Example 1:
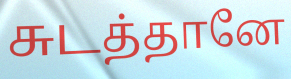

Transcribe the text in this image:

சுடத்தானே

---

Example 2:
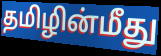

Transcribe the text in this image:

தமிழின்மீது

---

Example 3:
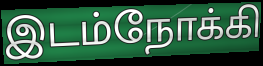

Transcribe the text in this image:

இடம்நோக்கி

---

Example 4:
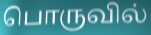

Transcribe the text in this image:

பொருவில்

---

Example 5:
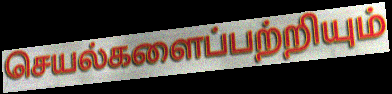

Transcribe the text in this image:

செயல்களைப்பற்றியும்